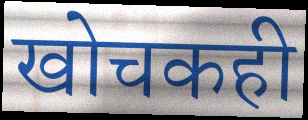
खोचकही